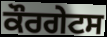
ਕੌਰਗੇਟਸ